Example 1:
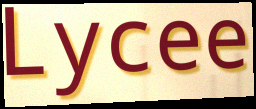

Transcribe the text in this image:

Lycee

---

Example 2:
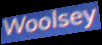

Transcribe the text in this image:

Woolsey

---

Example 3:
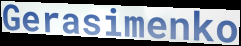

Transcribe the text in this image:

Gerasimenko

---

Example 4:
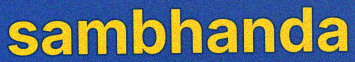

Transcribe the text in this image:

sambhanda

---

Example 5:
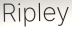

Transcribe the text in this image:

Ripley